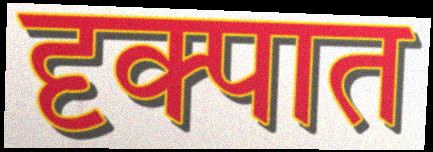
दृक्पात